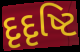
દૃદૃષ્ટિ